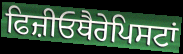
ਫਿਜ਼ੀਓਥੈਰੇਪਿਸਟਾਂ